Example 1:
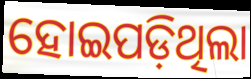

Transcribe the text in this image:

ହୋଇପଡ଼ିଥିଲା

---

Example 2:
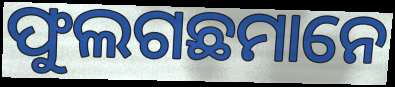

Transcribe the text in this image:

ଫୁଲଗଛମାନେ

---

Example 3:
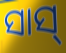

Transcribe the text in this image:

ସାସ୍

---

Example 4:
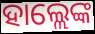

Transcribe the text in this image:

ହାଲ୍ଲେଙ୍କ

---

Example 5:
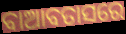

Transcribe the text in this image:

ବାଆବତାସରେ